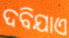
ଦବିଯାଏ